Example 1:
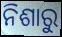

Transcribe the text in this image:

ନିଶାରୁ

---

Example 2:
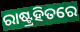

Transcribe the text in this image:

ରାଷ୍ଟ୍ରହିତରେ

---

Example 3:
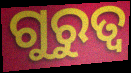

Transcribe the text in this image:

ଗୁରୁତ୍ବ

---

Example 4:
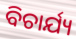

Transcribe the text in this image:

ବିଚାର୍ଯ୍ୟ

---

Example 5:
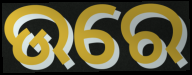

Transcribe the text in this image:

ଉରେ